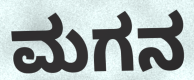
ಮಗನ